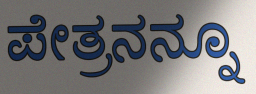
ಪೇತ್ರನನ್ನೂ